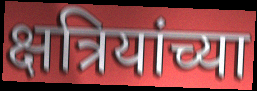
क्षत्रियांच्या